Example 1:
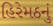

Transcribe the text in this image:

હિરેમઠનું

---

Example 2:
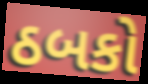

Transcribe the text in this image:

ઠબકો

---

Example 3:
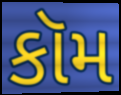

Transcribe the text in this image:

કૉમ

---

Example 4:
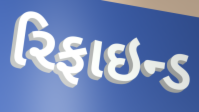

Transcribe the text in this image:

રિફાઇન્ડ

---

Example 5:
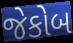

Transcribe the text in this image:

જેકોબ